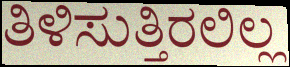
ತಿಳಿಸುತ್ತಿರಲಿಲ್ಲ